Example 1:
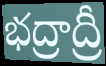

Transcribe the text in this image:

భద్రాద్రీ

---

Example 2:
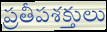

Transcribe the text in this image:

ప్రతీపశక్తులు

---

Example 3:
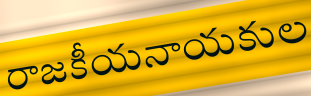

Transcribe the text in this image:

రాజకీయనాయకుల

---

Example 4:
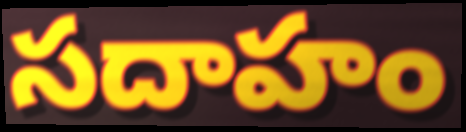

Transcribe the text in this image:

సదాహం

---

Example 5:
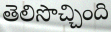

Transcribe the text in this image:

తెలిసొచ్చింది